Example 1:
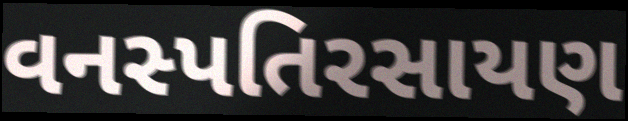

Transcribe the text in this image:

વનસ્પતિરસાયણ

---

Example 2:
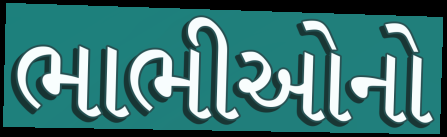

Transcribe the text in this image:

ભાભીઓનો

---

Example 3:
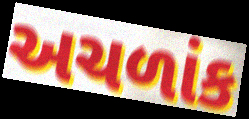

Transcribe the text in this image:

અચળાંક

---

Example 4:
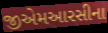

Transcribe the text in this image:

જીએમઆરસીના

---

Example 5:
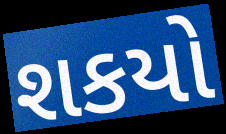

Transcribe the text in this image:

શકયો